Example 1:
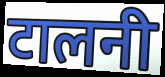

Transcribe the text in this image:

टालनी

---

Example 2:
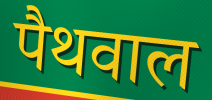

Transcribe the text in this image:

पैथवाल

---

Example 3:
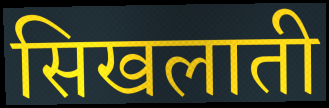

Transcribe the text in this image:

सिखलाती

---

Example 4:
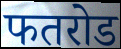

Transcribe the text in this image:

फतरोड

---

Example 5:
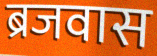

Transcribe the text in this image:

ब्रजवास